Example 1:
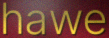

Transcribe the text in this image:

hawe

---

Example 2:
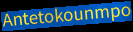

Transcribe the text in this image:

Antetokounmpo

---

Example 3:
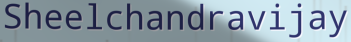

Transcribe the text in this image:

Sheelchandravijay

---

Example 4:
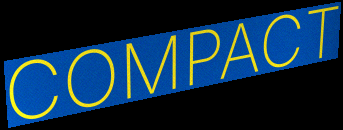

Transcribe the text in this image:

COMPACT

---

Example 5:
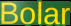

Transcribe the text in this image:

Bolar